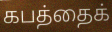
கபத்தைக்